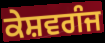
ਕੇਸ਼ਵਗੰਜ